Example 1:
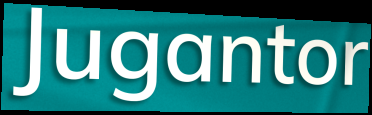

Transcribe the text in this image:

Jugantor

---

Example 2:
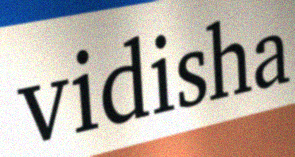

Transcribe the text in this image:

vidisha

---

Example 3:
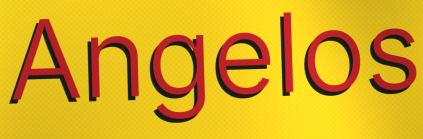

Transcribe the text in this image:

Angelos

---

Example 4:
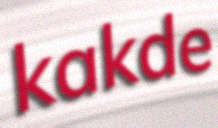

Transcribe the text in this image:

kakde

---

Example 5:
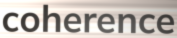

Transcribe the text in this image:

coherence